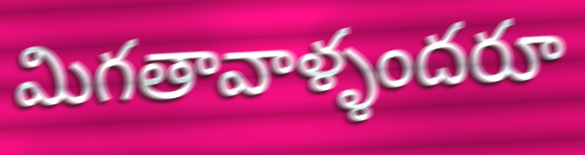
మిగతావాళ్ళందరూ